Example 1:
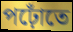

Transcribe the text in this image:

পঢ়োঁতে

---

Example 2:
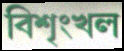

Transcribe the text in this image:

বিশৃংখল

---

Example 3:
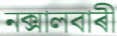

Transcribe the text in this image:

নক্সালবাৰী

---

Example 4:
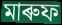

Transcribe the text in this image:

মাৰুফ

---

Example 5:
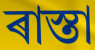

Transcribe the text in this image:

ৰাস্তা